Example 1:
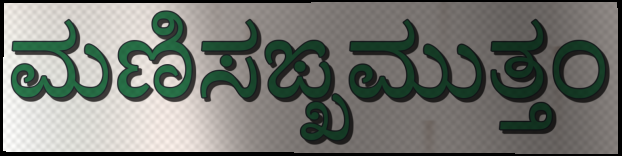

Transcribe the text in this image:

ಮಣಿಸಙ್ಖಮುತ್ತಂ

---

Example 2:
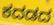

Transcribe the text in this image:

ಕದಡದ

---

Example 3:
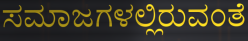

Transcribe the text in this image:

ಸಮಾಜಗಳಲ್ಲಿರುವಂತೆ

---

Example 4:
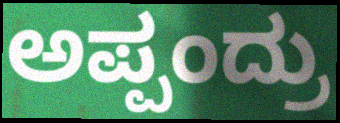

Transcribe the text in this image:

ಅಪ್ಪಂದ್ರು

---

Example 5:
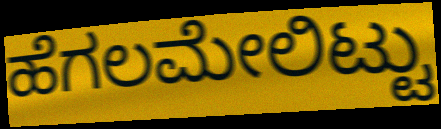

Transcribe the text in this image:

ಹೆಗಲಮೇಲಿಟ್ಟು